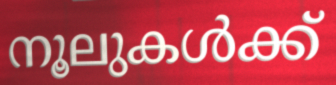
നൂലുകൾക്ക്